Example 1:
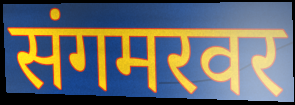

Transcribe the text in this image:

संगमरवर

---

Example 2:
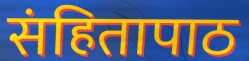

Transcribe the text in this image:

संहितापाठ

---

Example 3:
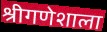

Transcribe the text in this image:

श्रीगणेशाला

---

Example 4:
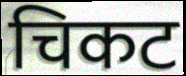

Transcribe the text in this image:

चिकट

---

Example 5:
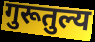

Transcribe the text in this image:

गुरूतुल्य